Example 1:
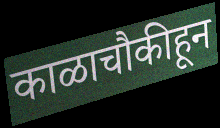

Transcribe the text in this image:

काळाचौकीहून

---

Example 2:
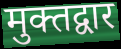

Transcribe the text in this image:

मुक्तद्वार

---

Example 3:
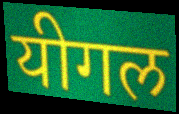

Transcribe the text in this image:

यीगल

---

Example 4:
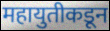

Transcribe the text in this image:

महायुतीकडून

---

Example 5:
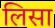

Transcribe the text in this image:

लिसा